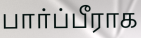
பார்ப்பீராக